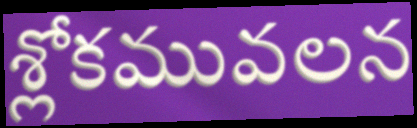
శ్లోకమువలన